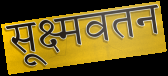
सूक्ष्मवतन